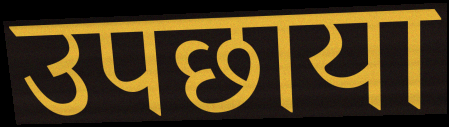
उपछाया